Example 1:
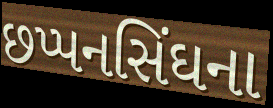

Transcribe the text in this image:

છપ્પનસિંઘના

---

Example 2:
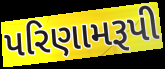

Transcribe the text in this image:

પરિણામરૂપી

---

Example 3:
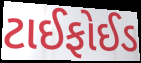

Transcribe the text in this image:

ટાઈફોઈડ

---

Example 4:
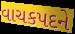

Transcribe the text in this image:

વાચકપદને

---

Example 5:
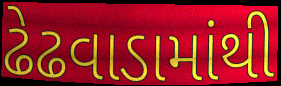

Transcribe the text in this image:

ઢેઢવાડામાંથી